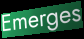
Emerges